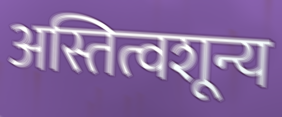
अस्तित्वशून्य